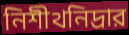
নিশীথনিদ্রার